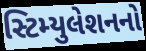
સ્ટિમ્યુલેશનનો